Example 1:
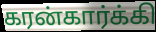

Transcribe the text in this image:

கரன்கார்க்கி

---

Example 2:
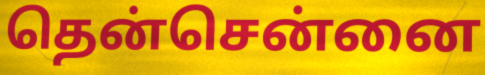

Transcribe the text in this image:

தென்சென்னை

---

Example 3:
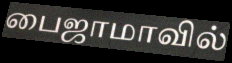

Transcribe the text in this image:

பைஜாமாவில்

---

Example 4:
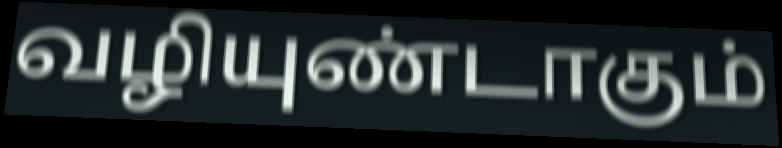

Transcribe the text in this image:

வழியுண்டாகும்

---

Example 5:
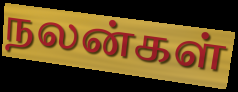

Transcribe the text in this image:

நலன்கள்